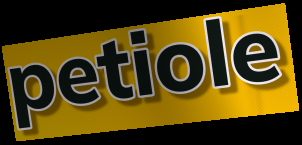
petiole